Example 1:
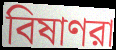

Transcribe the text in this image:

বিষাণরা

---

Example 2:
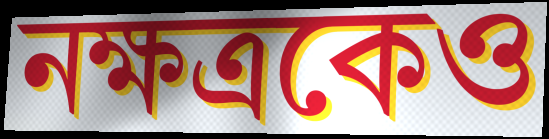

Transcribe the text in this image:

নক্ষত্রকেও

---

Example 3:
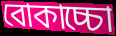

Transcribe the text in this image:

বোকাচ্চো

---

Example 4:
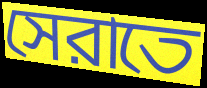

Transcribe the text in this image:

সেরাতে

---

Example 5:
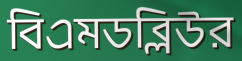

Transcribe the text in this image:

বিএমডব্লিউর